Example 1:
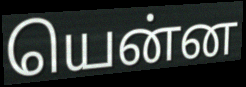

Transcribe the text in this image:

யென்ன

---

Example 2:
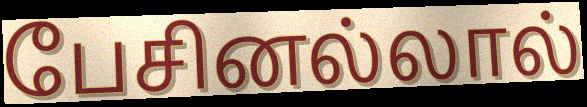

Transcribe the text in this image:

பேசினல்லால்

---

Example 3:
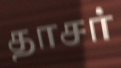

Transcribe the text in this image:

தாசர்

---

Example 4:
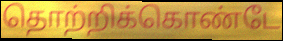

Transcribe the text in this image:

தொற்றிக்கொண்டே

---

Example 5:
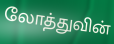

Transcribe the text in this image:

லோத்துவின்